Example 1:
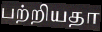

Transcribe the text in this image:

பற்றியதா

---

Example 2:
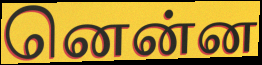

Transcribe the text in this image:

னென்ன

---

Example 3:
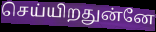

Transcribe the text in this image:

செய்யிறதுன்னே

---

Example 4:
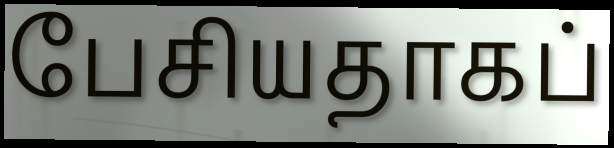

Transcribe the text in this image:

பேசியதாகப்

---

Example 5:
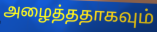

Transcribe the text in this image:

அழைத்ததாகவும்